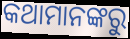
କଥାମାନଙ୍କରୁ